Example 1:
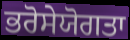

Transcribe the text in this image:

ਭਰੋਸੇਯੋਗਤਾ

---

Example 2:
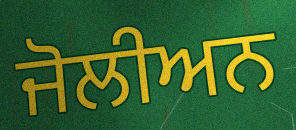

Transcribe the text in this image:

ਜੋਲੀਅਨ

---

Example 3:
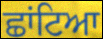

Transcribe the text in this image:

ਛਾਂਟਿਆ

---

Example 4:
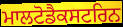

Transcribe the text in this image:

ਮਾਲਟੋਡੈਕਸਟਰਿਨ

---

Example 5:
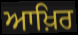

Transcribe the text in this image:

ਆਖ਼ਿਰ